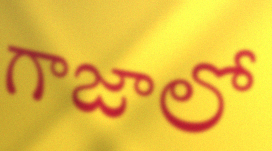
గాజాలో